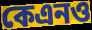
কেএনও